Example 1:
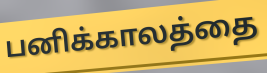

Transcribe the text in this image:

பனிக்காலத்தை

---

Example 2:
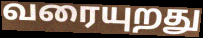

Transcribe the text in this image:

வரையுறது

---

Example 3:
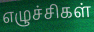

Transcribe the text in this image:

எழுச்சிகள்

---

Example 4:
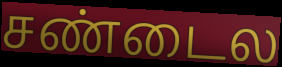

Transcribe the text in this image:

சண்டைல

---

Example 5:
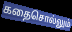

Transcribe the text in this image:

கதைசொல்லும்